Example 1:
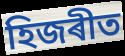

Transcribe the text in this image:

হিজৰীত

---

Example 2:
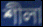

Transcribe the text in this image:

শীলা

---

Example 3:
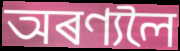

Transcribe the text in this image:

অৰণ্যলৈ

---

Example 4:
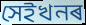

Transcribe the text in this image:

সেইখনৰ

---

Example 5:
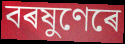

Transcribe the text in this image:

বৰষুণেৰে